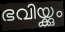
ഭവിയ്ക്കും